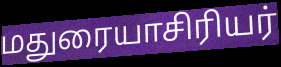
மதுரையாசிரியர்